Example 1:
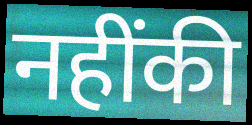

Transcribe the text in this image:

नहींकी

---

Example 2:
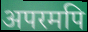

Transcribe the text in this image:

अपरमपि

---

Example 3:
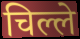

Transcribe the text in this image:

चिल्ले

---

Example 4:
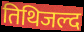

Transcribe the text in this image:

तिथिजल्द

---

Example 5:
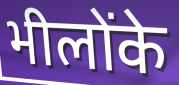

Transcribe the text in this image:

भीलोंके